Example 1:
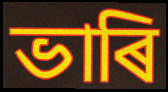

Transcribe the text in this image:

ভাৰি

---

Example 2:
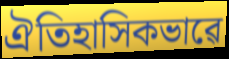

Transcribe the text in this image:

ঐতিহাসিকভাৱে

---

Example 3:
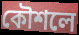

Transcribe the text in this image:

কৌশলে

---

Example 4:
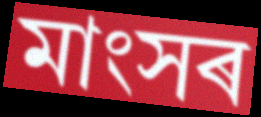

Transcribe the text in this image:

মাংসৰ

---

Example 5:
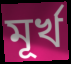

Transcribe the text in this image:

মূৰ্খ